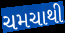
ચમચાથી